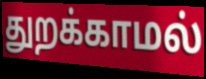
துறக்காமல்